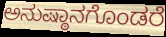
ಅನುಷ್ಠಾನಗೊಂಡರೆ